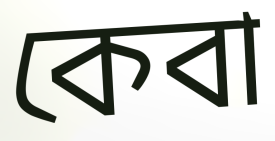
কেবা